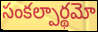
సంకల్పార్థమో